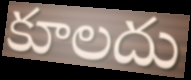
కూలదు